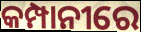
କମ୍ପାନୀରେ